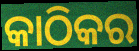
କାଠିକର